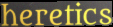
heretics